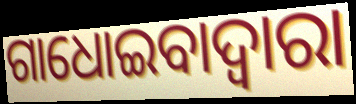
ଗାଧୋଇବାଦ୍ଵାରା